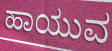
ಹಾಯುವ